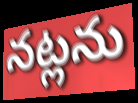
నట్లను